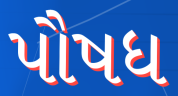
પૌષધ